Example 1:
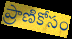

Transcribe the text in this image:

ప్రాణికోసం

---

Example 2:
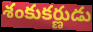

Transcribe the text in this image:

శంకుకర్ణుడు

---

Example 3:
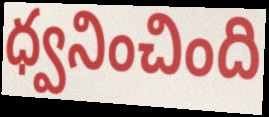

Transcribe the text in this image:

ధ్వనించింది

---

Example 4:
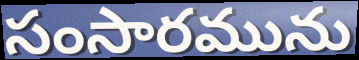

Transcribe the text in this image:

సంసారమును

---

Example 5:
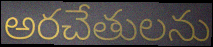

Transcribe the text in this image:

అరచేతులను